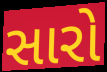
સારો